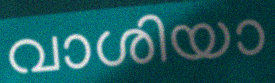
വാശിയാ